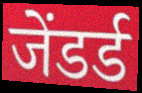
जेंडर्ड